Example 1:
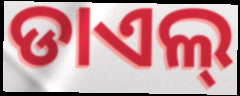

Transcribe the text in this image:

ଡାଏଲ୍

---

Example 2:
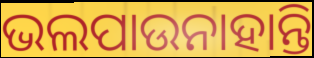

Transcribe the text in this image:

ଭଲପାଉନାହାନ୍ତି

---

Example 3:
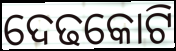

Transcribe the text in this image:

ଦେଢକୋଟି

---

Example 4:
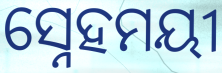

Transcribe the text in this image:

ସ୍ନେହମୟୀ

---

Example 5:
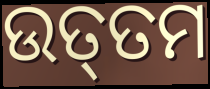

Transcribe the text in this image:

ଉତ୍‌ତମ